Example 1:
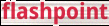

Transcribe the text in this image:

flashpoint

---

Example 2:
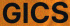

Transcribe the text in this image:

GICS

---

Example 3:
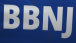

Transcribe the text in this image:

BBNJ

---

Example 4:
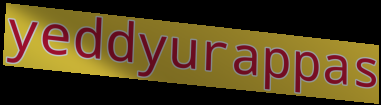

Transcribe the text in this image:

yeddyurappas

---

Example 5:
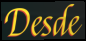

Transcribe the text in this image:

Desde